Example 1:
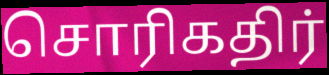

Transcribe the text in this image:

சொரிகதிர்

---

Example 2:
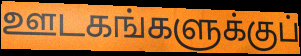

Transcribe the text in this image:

ஊடகங்களுக்குப்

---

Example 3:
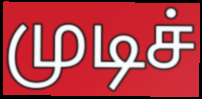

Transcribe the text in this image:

முடிச்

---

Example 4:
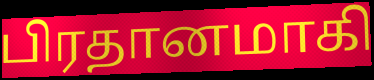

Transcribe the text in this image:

பிரதானமாகி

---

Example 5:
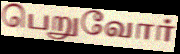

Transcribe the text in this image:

பெறுவோர்